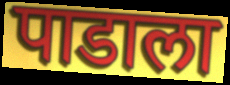
पाडाला